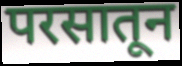
परसातून